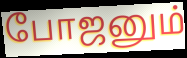
போஜனும்